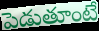
పెడుతూంటే